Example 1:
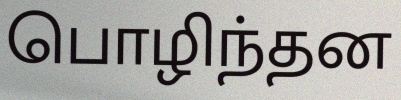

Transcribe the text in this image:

பொழிந்தன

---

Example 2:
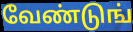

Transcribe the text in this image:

வேண்டுங்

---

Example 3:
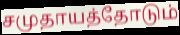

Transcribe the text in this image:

சமுதாயத்தோடும்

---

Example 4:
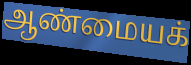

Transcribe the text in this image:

ஆண்மையக்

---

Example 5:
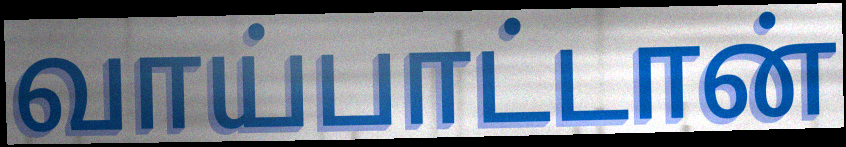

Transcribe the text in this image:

வாய்பாட்டான்